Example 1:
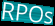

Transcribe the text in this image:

RPOs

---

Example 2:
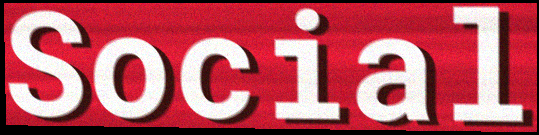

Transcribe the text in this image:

Social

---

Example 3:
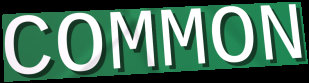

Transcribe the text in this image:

COMMON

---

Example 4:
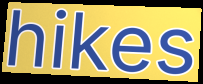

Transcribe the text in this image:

hikes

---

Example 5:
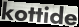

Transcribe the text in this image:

kottide